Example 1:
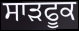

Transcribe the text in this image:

ਸਾੜਫੂਕ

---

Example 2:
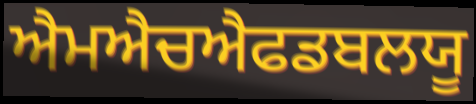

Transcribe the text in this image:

ਐਮਐਚਐਫਡਬਲਯੂ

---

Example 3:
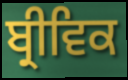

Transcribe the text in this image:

ਬ੍ਰੀਵਿਕ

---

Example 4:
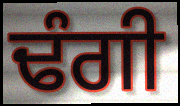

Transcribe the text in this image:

ਢੰਗੀ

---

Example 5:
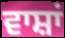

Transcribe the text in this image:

ਵਾਸ਼ਾਂ